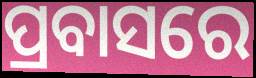
ପ୍ରବାସରେ